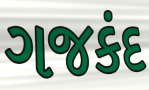
ગજકંદ